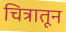
चित्रातून